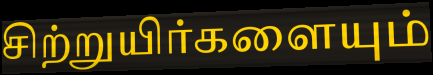
சிற்றுயிர்களையும்